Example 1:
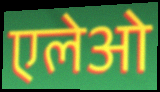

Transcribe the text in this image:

एलेओ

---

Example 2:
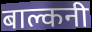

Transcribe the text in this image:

बाल्कनी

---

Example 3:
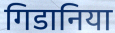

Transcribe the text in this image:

गिडानिया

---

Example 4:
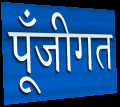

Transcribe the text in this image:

पूँजीगत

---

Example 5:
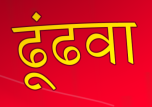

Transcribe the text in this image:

ढूंढवा